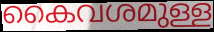
കൈവശമുള്ള